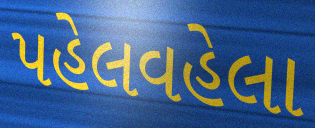
પહેલવહેલા